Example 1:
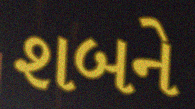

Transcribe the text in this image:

શબને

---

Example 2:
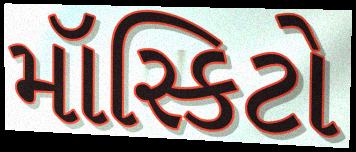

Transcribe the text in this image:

મૉસ્કિટો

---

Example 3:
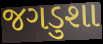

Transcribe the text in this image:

જગડુશા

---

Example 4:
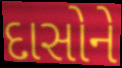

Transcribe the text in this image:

દાસોને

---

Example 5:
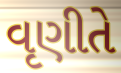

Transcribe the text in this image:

વૃણીતે